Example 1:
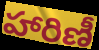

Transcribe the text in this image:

హారిణీ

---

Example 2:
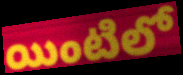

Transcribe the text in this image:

యింటిలో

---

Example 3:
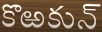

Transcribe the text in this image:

కొఱకున్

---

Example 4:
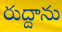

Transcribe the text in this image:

రుద్దాను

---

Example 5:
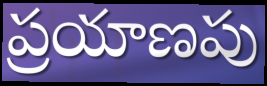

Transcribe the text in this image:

ప్రయాణపు